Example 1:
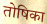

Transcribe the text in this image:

तोषिका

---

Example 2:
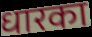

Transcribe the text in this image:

धारका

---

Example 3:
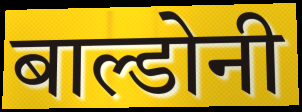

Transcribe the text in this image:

बाल्डोनी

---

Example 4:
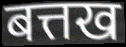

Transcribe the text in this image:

बत्तख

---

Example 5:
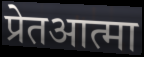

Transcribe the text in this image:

प्रेतआत्मा